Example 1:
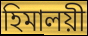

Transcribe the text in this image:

হিমালয়ী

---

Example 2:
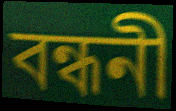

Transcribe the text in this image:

বন্ধনী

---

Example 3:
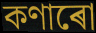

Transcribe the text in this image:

কণাৰো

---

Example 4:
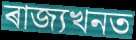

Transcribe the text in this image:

ৰাজ্যখনত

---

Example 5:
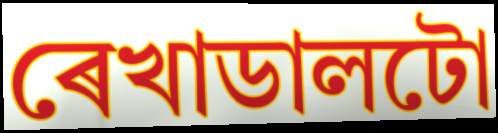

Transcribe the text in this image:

ৰেখাডালটো